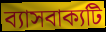
ব্যাসবাক্যটি